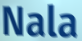
Nala